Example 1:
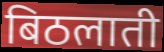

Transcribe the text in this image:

बिठलाती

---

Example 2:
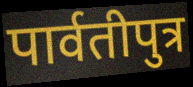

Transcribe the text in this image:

पार्वतीपुत्र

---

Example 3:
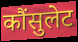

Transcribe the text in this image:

कौंसुलेट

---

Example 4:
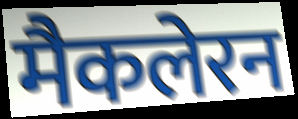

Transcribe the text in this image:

मैकलेरन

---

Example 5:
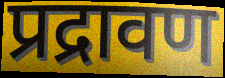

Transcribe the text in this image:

प्रद्रावण